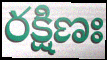
రక్షిణః